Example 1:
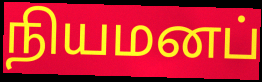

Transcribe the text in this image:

நியமனப்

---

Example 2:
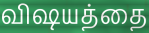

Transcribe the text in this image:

விஷயத்தை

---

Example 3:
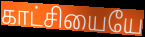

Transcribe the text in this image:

காட்சியையே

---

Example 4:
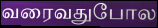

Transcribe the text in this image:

வரைவதுபோல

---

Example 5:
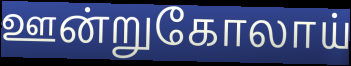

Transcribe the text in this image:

ஊன்றுகோலாய்